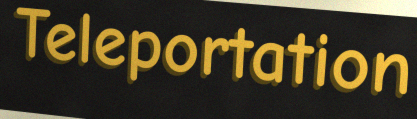
Teleportation